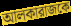
আলকারাজকে